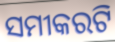
ସମୀକରଟି